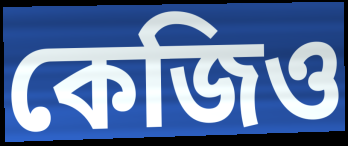
কেজিও